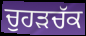
ਚੁਹੜਚੱਕ